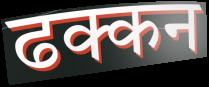
ढक्कन